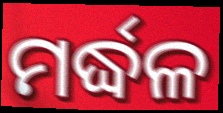
ମର୍ଦ୍ଧଳ